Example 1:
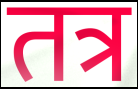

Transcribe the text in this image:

तत्र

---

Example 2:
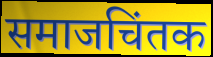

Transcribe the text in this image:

समाजचिंतक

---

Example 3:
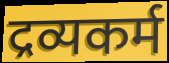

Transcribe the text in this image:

द्रव्यकर्म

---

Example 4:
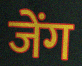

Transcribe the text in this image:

जेंग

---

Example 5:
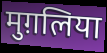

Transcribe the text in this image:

मुग़लिया